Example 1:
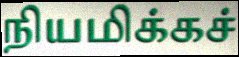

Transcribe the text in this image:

நியமிக்கச்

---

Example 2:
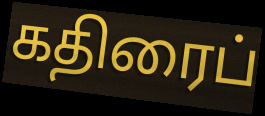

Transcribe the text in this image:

கதிரைப்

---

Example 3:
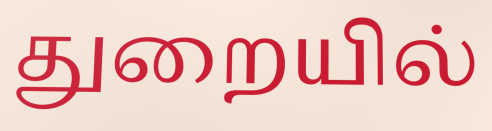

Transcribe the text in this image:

துறையில்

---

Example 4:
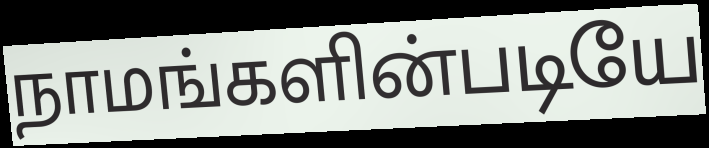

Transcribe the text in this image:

நாமங்களின்படியே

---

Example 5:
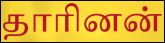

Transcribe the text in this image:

தாரினன்